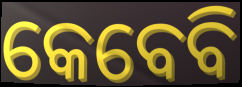
କେବେବି